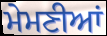
ਮੇਮਣੀਆਂ